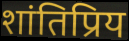
शांतिप्रिय